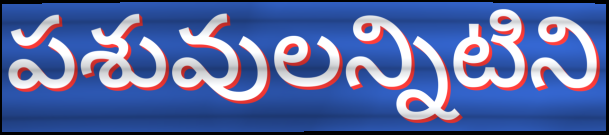
పశువులన్నిటిని